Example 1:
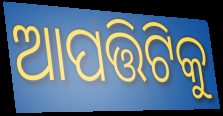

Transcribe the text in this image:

ଆପତ୍ତିଟିକୁ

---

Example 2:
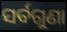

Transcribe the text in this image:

ସର୍ବଗୁଣା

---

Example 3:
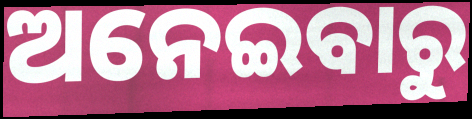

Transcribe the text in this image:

ଅନେଇବାରୁ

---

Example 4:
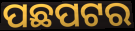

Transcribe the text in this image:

ପଛପଟର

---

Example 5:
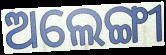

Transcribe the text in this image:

ଅଲେଙ୍ଗୀ